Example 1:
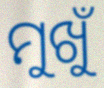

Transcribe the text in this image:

ମୁଖୁଁ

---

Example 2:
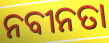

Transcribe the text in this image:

ନବୀନତା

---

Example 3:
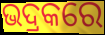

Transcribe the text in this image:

ଭଦ୍ରକରେ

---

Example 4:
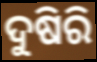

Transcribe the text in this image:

ଦୁଷିରି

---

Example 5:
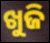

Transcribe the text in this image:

ଖୁଜି